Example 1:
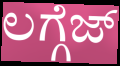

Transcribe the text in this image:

ಲಗ್ಗೆಜ್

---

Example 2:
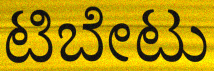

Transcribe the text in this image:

ಟಿಬೇಟು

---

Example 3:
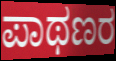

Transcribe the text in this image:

ಪಾಥಣರ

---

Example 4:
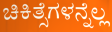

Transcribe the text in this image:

ಚಿಕಿತ್ಸೆಗಳನ್ನೆಲ್ಲ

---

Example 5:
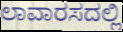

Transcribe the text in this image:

ಲಾವಾರಸದಲ್ಲಿ